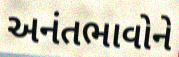
અનંતભાવોને